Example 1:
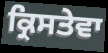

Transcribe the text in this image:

ਕ੍ਰਿਸਤੇਵਾ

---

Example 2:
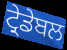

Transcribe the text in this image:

ਟ੍ਰੇਡੇਬਲ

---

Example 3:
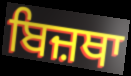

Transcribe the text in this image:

ਬਿਜ਼ਥਾ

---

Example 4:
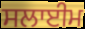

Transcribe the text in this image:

ਸਲਾਈਮ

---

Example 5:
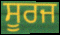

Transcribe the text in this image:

ਸੂਰਜ